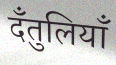
दँतुलियाँ